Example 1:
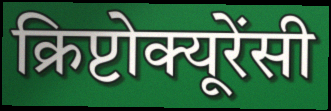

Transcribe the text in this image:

क्रिप्टोक्यूरेंसी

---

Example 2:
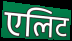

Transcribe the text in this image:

एलिट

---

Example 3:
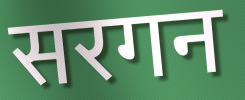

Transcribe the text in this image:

सरगन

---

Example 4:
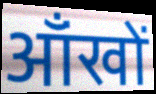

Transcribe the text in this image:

आंँखों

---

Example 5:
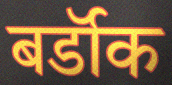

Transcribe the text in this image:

बर्डॉक